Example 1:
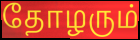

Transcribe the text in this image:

தோழரும்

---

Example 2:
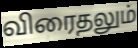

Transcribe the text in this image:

விரைதலும்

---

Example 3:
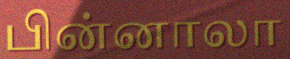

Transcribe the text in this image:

பின்னாலா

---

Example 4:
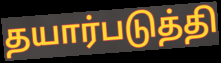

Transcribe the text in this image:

தயார்படுத்தி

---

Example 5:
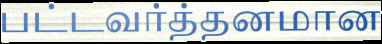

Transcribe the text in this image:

பட்டவர்த்தனமான